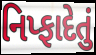
નિપ્ફાદેતું